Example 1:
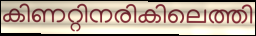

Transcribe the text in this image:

കിണറ്റിനരികിലെത്തി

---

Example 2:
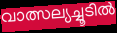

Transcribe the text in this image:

വാത്സല്യച്ചൂടിൽ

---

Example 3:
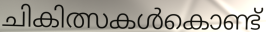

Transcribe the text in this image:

ചികിത്സകൾകൊണ്ട്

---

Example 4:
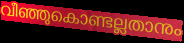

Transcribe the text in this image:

വീഞ്ഞുകൊണ്ടല്ലതാനും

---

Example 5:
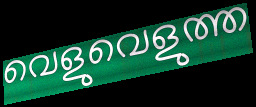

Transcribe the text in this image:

വെളുവെളുത്ത